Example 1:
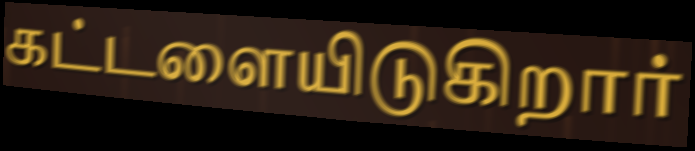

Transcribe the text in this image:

கட்டளையிடுகிறார்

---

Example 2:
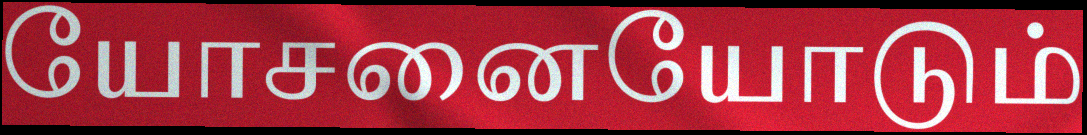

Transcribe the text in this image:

யோசனையோடும்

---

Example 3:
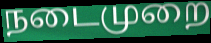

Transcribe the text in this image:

நடைமுறை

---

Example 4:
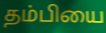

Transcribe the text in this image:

தம்பியை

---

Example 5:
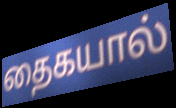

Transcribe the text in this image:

தைகயால்